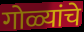
गोळ्यांचे